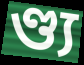
ণ্ড্য